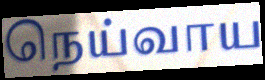
நெய்வாய